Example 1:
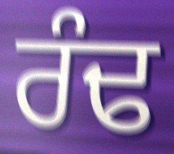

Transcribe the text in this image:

ਰੰਢ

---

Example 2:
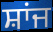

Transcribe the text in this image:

ਸ਼ਾਂਜ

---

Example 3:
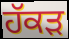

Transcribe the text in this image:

ਹੱਕੜ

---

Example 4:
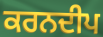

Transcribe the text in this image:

ਕਰਨਦੀਪ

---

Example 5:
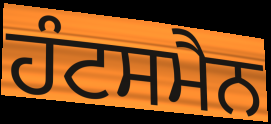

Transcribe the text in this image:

ਹੰਟਸਮੈਨ